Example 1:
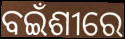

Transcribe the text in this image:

ବଇଁଶୀରେ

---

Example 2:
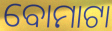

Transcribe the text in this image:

ବୋମାଟା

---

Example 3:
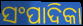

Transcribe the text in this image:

ସଂପାଦିକା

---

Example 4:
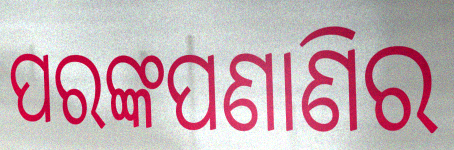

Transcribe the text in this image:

ପରଙ୍କପଣାଣିର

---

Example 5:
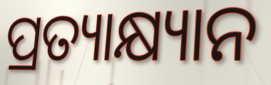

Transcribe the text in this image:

ପ୍ରତ୍ୟାକ୍ଷ୍ୟାନ